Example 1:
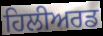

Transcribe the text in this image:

ਹਿਲੀਅਰਡ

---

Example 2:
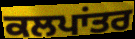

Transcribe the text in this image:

ਕਲਪਾਂਤਰ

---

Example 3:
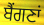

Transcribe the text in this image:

ਬੈਂਗਣਾਂ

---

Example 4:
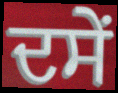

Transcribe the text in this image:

ਦਸੇਂ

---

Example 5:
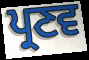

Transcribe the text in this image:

ਪ੍ਰਣਵ